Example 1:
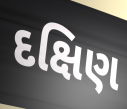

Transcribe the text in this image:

દક્ષિણ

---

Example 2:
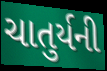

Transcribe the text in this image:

ચાતુર્યની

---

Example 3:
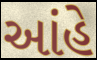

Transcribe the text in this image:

આંહે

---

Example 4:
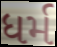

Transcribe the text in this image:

ધર્મ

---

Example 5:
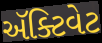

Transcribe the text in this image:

ઍક્ટિવેટ